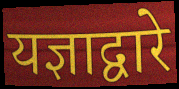
यज्ञाद्वारे